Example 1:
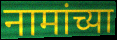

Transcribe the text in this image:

नामांच्या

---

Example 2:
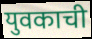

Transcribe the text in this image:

युवकाची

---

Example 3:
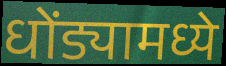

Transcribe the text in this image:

धोंड्यामध्ये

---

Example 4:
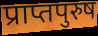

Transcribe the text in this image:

प्राप्तपुरुष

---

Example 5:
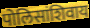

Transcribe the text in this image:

पोलिसांशिवाय